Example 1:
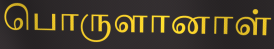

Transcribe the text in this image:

பொருளானாள்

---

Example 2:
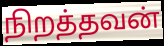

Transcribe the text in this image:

நிறத்தவன்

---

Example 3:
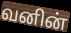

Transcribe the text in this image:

வனின்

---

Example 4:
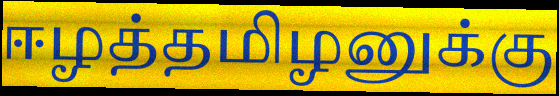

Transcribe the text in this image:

ஈழத்தமிழனுக்கு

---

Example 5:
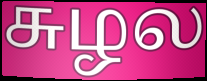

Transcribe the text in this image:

சுழல